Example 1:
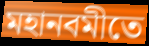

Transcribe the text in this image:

মহানবমীতে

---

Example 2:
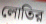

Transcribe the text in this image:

লোতির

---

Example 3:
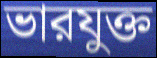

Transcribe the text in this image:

ভারযুক্ত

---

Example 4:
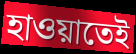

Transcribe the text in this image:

হাওয়াতেই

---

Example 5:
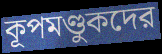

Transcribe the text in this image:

কূপমণ্ডুকদের